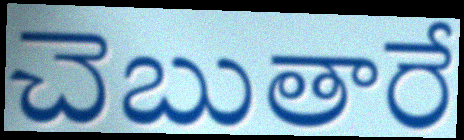
చెబుతారే